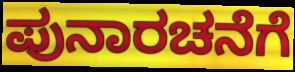
ಪುನಾರಚನೆಗೆ